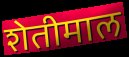
शेतीमाल